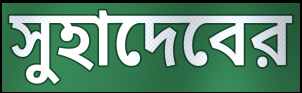
সুহাদেবের